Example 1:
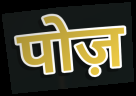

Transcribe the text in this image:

पोज़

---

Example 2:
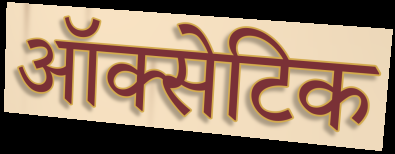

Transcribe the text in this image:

ऑक्सेटिक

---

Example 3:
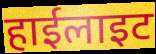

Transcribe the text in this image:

हाईलाइट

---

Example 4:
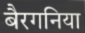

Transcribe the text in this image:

बैरगनिया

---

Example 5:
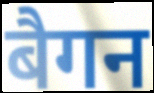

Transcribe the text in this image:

बैगन